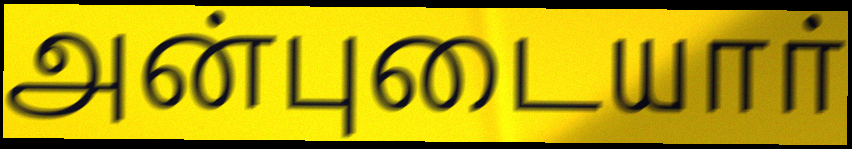
அன்புடையார்